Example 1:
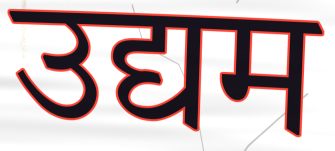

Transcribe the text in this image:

उद्यम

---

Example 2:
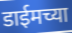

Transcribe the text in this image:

डाईमच्या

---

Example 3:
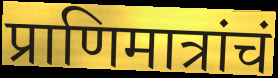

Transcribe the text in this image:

प्राणिमात्रांचं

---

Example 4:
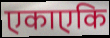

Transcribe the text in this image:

एकाएकि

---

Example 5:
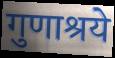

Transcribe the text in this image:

गुणाश्रये